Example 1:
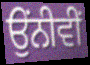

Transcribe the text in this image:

ਉੰਨੀਵੀਂ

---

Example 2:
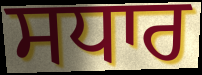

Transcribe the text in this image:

ਸਧਾਰ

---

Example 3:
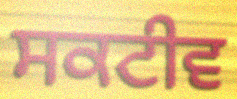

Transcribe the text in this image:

ਸਕਟੀਵ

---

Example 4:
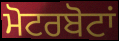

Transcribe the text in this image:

ਮੋਟਰਬੋਟਾਂ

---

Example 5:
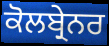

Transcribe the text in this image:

ਕੋਲਬ੍ਰੇਨਰ